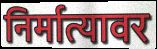
निर्मात्यावर